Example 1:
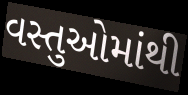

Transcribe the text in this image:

વસ્તુઓમાંથી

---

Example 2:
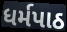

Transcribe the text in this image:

ધર્મપાઠ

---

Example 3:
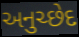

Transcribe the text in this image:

અનુચ્છેદ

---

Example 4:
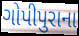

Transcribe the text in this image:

ગોપીપુરાના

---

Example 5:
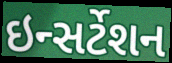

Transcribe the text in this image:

ઇન્સર્ટેશન